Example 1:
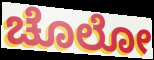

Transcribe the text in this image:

ಚೊಲೋ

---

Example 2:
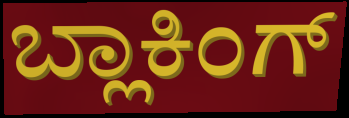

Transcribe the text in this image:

ಬ್ಲಾಕಿಂಗ್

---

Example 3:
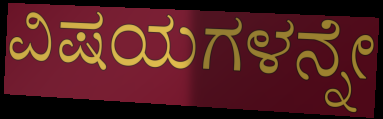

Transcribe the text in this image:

ವಿಷಯಗಳನ್ನೇ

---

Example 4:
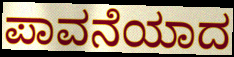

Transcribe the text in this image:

ಪಾವನೆಯಾದ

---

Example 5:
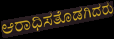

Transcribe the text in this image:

ಆರಾಧಿಸತೊಡಗಿದರು